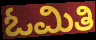
ಓಮಿತಿ